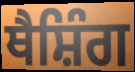
ਥੈਸ਼ਿੰਗ